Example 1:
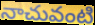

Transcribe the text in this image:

నాచువంటి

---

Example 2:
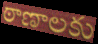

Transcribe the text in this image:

ఠాణాలకు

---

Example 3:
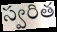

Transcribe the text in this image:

స్వరిత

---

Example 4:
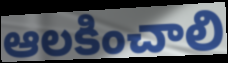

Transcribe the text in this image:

ఆలకించాలి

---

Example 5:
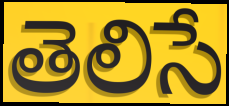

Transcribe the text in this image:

తెలిసే